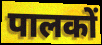
पालकों